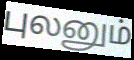
புலனும்